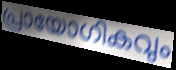
പ്രായോഗികവും